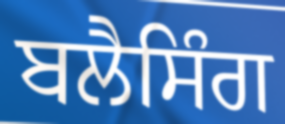
ਬਲੈਸਿੰਗ